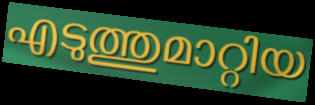
എടുത്തുമാറ്റിയ